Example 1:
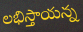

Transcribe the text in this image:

లభిస్తాయన్న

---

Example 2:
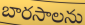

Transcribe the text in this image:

బారసాలను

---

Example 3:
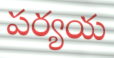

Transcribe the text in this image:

పర్యయ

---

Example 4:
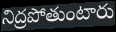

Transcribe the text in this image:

నిద్రపోతుంటారు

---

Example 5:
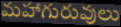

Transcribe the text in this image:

మహాగురువులు